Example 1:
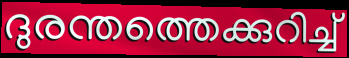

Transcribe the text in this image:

ദുരന്തത്തെക്കുറിച്ച്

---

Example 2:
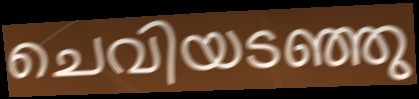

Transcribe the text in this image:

ചെവിയടഞ്ഞു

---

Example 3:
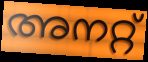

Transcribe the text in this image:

അനറ്റ്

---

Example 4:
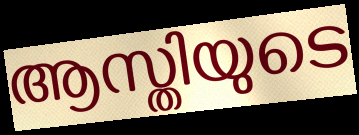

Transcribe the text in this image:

ആസ്തിയുടെ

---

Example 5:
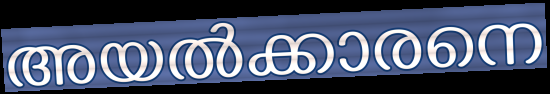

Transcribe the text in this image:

അയൽക്കാരനെ